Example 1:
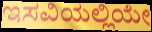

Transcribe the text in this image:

ಇಸವಿಯಲ್ಲಿಯೇ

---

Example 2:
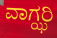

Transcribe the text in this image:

ವಾಗ್ಝರಿ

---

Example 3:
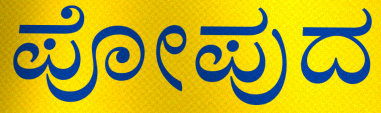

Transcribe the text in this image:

ಪೋಪುದ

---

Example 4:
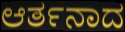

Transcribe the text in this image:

ಆರ್ತನಾದ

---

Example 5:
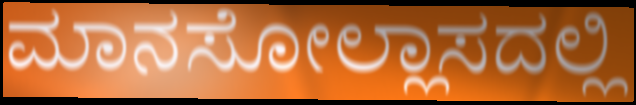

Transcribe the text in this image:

ಮಾನಸೋಲ್ಲಾಸದಲ್ಲಿ